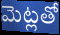
మెట్లతో